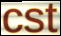
cst